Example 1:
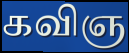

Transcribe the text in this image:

கவிஞ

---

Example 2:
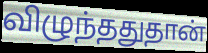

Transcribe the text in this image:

விழுந்ததுதான்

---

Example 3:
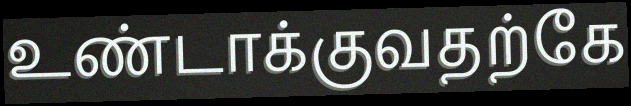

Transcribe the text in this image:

உண்டாக்குவதற்கே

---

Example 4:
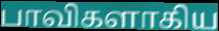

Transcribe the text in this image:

பாவிகளாகிய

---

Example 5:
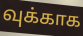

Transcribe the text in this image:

வுக்காக